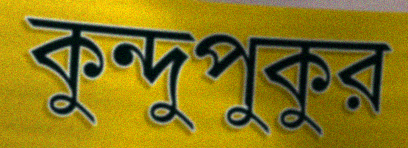
কুন্দুপুকুর